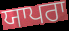
ਯਾਪਰਾ